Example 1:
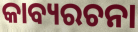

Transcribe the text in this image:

କାବ୍ୟରଚନା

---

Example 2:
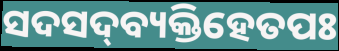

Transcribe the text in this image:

ସଦସଦ୍‌ବ୍ୟକ୍ତିହେତପଃ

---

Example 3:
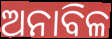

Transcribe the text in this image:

ଅନାବିଳ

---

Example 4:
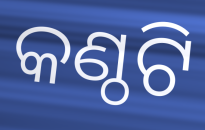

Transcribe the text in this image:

କଣ୍ଠଟି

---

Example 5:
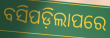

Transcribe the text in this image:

ବସିପଡ଼ିଲାପରେ